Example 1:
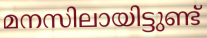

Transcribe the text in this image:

മനസിലായിട്ടുണ്ട്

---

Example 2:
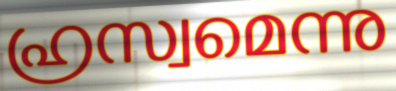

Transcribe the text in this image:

ഹ്രസ്വമെന്നു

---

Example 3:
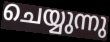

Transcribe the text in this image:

ചെയ്യുന്നു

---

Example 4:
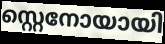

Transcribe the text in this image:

സ്റ്റെനോയായി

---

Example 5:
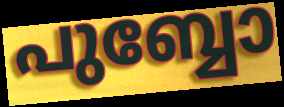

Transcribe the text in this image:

പുബ്ബോ